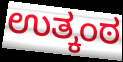
ಉತ್ಕಂಠ